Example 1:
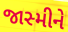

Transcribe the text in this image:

જાસ્મીને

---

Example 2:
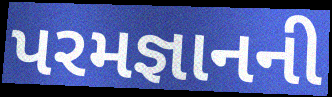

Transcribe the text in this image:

પરમજ્ઞાનની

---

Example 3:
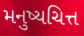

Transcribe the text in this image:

મનુષ્યચિત્ત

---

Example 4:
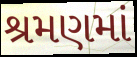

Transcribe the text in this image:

શ્રમણમાં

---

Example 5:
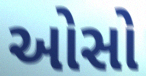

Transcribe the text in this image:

ઓસો